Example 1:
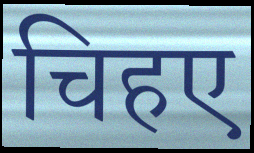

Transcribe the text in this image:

चिहए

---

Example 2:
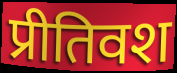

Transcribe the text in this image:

प्रीतिवश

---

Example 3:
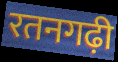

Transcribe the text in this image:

रतनगढ़ी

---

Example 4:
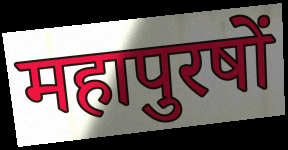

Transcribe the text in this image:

महापुरषों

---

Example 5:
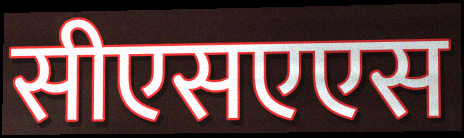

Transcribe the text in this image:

सीएसएएस